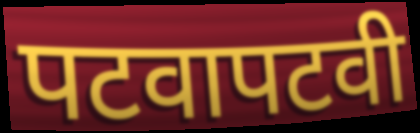
पटवापटवी